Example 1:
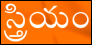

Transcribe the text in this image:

స్త్రియం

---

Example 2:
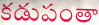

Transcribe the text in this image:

కడుపంతా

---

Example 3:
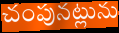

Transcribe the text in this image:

చంపునట్లును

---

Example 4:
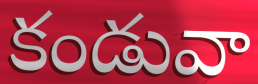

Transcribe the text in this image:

కండువా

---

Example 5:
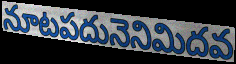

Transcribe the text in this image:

నూటపదునెనిమిదవ